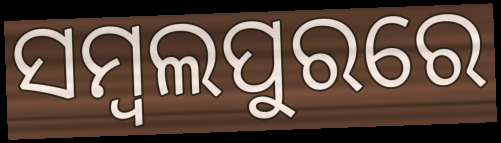
ସମ୍ବଲପୁରରେ